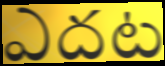
ఎదట